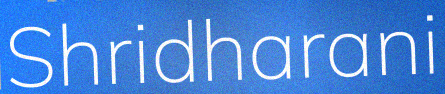
Shridharani